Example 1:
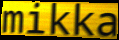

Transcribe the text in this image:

mikka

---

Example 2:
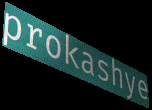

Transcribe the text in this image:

prokashye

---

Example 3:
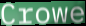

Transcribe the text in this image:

Crowe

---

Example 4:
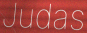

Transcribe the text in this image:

Judas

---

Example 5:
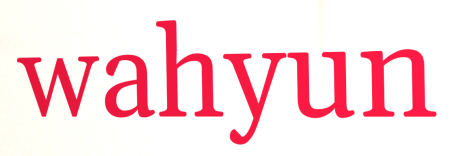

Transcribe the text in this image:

wahyun